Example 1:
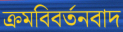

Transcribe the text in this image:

ক্রমবিবর্তনবাদ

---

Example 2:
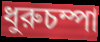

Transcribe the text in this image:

ধুরুচম্পা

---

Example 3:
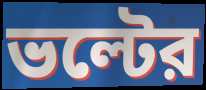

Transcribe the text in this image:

ভল্টের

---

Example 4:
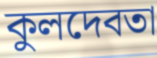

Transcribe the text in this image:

কুলদেবতা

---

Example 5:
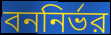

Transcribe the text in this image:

বননির্ভর